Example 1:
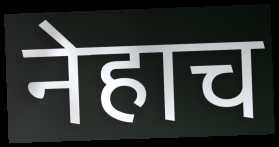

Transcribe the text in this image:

नेहाच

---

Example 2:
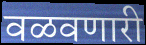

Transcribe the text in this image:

वळवणारी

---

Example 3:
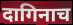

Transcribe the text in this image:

दागिनाच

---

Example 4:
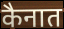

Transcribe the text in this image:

कैनात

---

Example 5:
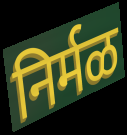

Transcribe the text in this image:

निर्मळ